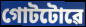
গোটটোৱে